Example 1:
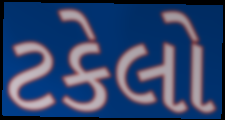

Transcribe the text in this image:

ટકેલો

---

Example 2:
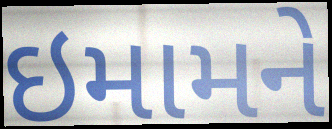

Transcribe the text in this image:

ઇમામને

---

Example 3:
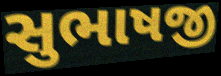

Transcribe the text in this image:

સુભાષજી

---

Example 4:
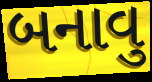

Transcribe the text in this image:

બનાવુ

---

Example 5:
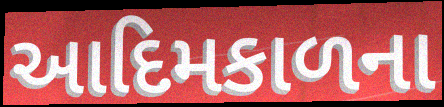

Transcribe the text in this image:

આદિમકાળના